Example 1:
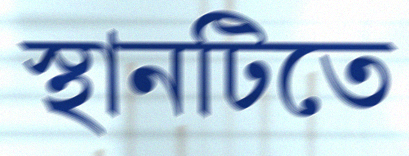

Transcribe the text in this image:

স্থানটিতে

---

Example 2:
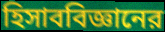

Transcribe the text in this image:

হিসাববিজ্ঞানের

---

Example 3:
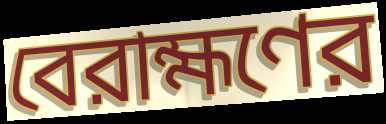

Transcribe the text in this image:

বেরাহ্মণের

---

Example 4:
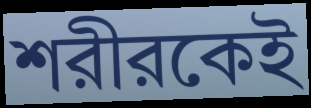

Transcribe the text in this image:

শরীরকেই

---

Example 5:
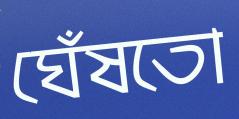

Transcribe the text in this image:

ঘেঁষতো